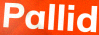
Pallid